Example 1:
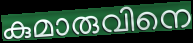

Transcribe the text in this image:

കുമാരുവിനെ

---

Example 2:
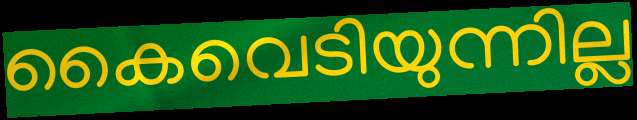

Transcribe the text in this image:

കൈവെടിയുന്നില്ല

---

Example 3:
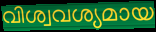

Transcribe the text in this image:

വിശ്വവശ്യമായ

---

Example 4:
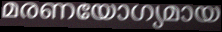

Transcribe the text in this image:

മരണയോഗ്യമായ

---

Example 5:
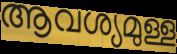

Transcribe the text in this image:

ആവശ്യമുള്ള